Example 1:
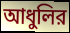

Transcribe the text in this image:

আধুলির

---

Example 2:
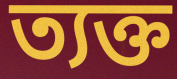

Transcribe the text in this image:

ত্যক্ত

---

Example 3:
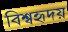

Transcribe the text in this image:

বিশ্বহৃদয়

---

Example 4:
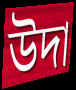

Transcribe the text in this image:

উদা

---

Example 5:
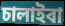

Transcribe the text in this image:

চালাইবা